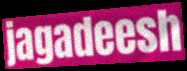
jagadeesh